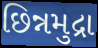
છિન્નમુદ્રા